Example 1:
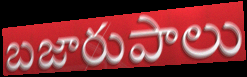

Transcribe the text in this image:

బజారుపాలు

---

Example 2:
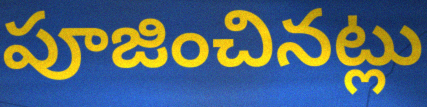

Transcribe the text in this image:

పూజించినట్లు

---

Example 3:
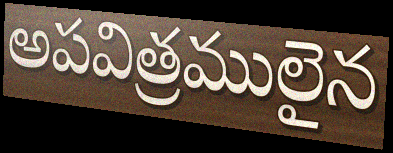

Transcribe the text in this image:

అపవిత్రములైన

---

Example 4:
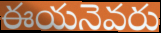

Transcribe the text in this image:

ఈయనెవరు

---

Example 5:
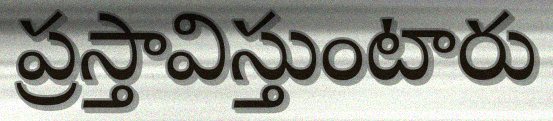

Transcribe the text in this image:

ప్రస్తావిస్తుంటారు